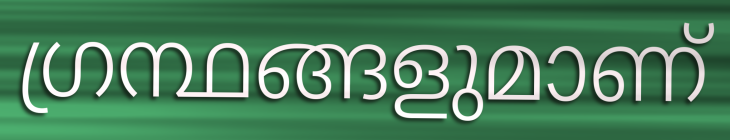
ഗ്രന്ഥങ്ങളുമാണ്